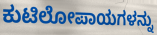
ಕುಟಿಲೋಪಾಯಗಳನ್ನು